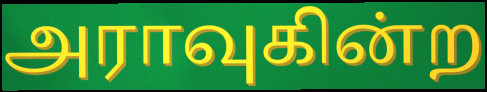
அராவுகின்ற